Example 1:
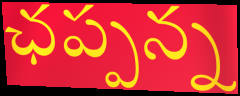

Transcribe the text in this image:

ఛప్పన్న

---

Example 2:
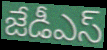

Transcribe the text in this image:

జేడీఎస్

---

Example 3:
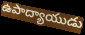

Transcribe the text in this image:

ఉపాద్యాయుడు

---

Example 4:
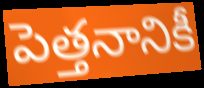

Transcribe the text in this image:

పెత్తనానికీ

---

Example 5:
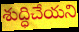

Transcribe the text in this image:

శుద్ధిచేయని